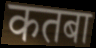
कतबा